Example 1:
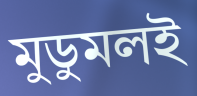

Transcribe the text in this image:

মুডুমলই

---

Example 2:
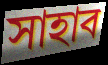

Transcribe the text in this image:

সাহাব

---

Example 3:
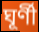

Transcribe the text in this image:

ঘূৰ্ণী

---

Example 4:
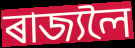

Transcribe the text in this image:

ৰাজ্যলৈ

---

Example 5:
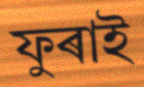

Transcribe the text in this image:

ফুৰাই